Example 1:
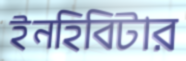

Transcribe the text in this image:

ইনহিবিটার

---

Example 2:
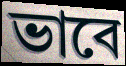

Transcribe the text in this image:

ভাবে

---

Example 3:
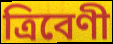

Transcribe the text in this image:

ত্রিবেণী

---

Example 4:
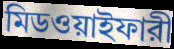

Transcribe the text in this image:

মিডওয়াইফারী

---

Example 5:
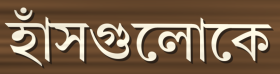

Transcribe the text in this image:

হাঁসগুলোকে